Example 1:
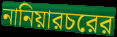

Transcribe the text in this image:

নানিয়ারচরের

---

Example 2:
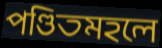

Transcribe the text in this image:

পণ্ডিতমহলে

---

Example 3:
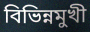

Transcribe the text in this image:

বিভিন্নমুখী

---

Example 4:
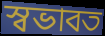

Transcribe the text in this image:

স্বভাবত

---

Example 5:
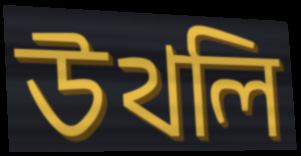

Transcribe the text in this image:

উথলি